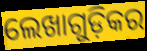
ଲେଖାଗୁଡ଼ିକର